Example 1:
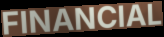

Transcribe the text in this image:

FINANCIAL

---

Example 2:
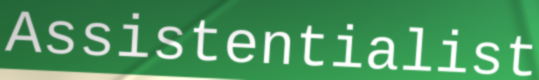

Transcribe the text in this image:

Assistentialist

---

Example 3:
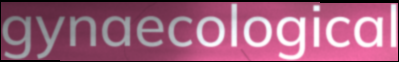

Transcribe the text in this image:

gynaecological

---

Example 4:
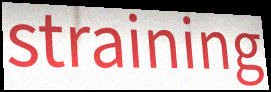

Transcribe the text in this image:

straining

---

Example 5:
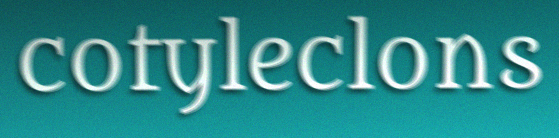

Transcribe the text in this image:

cotyleclons